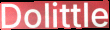
Dolittle